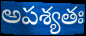
అపశ్యతః